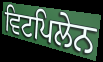
ਵਿਟਪਿਲੇਨ